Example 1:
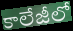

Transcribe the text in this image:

కాలేజీలో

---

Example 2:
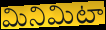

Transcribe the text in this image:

మినిమిటా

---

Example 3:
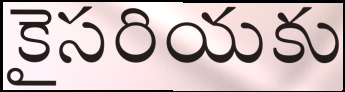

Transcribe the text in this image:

కైసరియకు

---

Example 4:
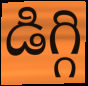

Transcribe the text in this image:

డిగ్గి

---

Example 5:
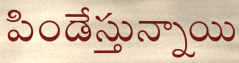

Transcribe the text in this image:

పిండేస్తున్నాయి